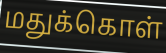
மதுக்கொள்